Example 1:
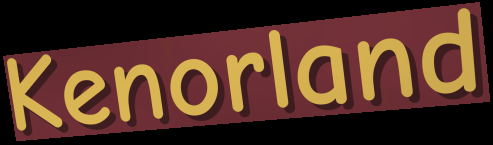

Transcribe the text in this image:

Kenorland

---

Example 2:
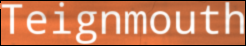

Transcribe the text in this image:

Teignmouth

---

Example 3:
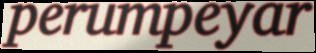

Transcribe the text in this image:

perumpeyar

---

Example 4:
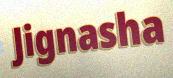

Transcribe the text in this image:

Jignasha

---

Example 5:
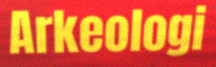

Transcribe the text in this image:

Arkeologi